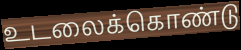
உடலைக்கொண்டு